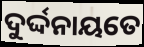
ଦୁର୍ଦ୍ଦନାୟତେ